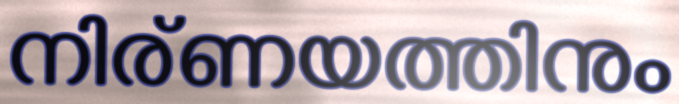
നിര്ണയത്തിനും